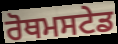
ਰੋਥਮਸਟੇਡ